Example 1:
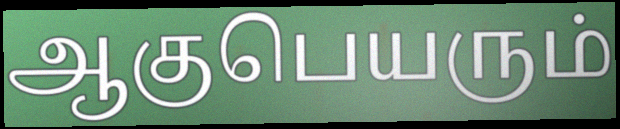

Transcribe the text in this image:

ஆகுபெயரும்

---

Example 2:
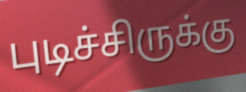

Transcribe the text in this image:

புடிச்சிருக்கு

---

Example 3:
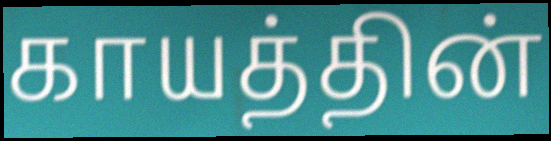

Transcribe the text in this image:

காயத்தின்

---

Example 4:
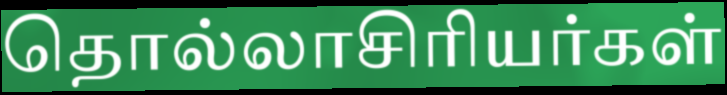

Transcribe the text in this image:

தொல்லாசிரியர்கள்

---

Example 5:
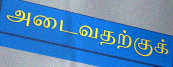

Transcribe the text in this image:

அடைவதற்குக்